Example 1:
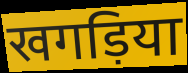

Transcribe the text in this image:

खगड़िया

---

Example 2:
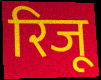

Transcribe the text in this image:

रिजू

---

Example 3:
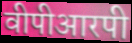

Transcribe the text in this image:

वीपीआरपी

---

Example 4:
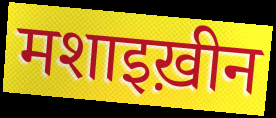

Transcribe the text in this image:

मशाइख़ीन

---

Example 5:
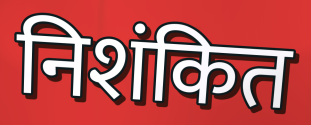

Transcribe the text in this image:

निशंकित